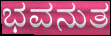
ಭವನುತ